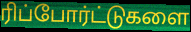
ரிப்போர்ட்டுகளை